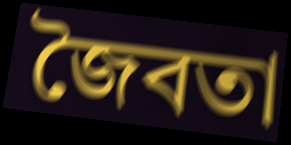
জৈবতা